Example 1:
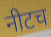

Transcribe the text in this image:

नीटच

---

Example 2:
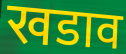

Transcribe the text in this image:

खडाव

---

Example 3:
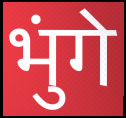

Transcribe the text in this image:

भुंगे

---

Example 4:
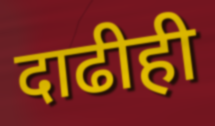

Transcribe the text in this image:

दाढीही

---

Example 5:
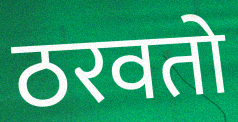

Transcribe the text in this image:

ठरवतो